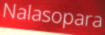
Nalasopara